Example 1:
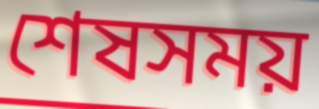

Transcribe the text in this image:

শেষসময়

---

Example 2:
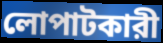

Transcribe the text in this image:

লোপাটকারী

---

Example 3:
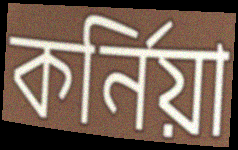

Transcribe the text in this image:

কর্নিয়া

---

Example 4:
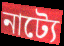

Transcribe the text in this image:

নাট্যে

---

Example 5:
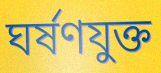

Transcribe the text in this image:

ঘর্ষণযুক্ত